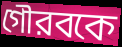
গৌরবকে